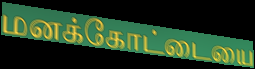
மனக்கோட்டையை